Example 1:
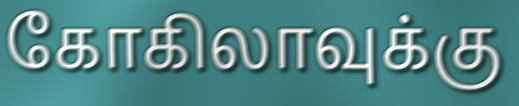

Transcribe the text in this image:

கோகிலாவுக்கு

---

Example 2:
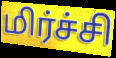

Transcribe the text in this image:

மிர்ச்சி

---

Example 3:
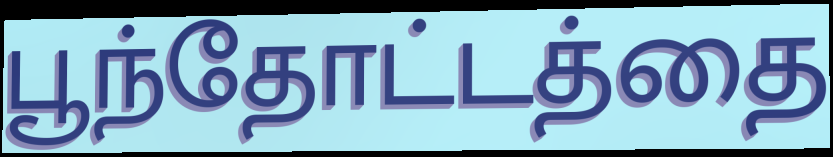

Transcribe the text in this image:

பூந்தோட்டத்தை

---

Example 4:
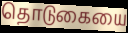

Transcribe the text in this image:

தொடுகையை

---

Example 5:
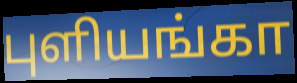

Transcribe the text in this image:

புளியங்கா